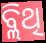
ବ୍ଲିଥି